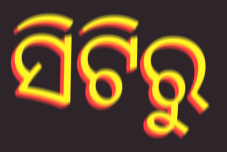
ସିଟିରୁ